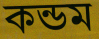
কন্ডম